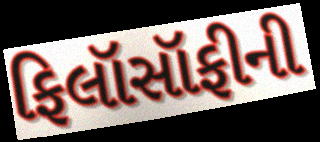
ફિલૉસૉફીની